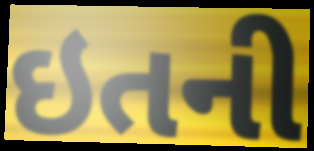
ઇતની